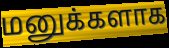
மனுக்களாக